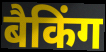
बैकिंग